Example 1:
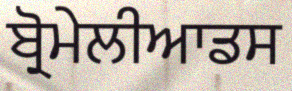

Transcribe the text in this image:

ਬ੍ਰੋਮੇਲੀਆਡਸ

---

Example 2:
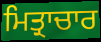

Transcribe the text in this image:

ਮਿਤ੍ਰਾਚਾਰ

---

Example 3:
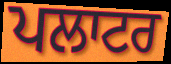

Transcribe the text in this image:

ਪਲਾਟਰ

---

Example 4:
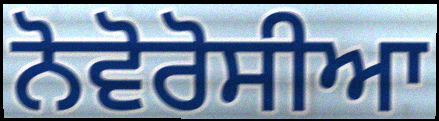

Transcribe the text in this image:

ਨੋਵੋਰੋਸੀਆ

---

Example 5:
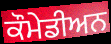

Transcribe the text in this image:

ਕੌਮੇਡੀਅਨ